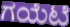
ಗಯೆಟೆ